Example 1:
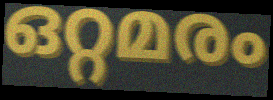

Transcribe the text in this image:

ഒറ്റമരം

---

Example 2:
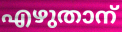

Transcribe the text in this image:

എഴുതാന്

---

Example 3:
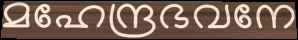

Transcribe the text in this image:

മഹേന്ദ്രഭവനേ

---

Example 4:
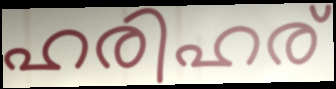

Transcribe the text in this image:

ഹരിഹര്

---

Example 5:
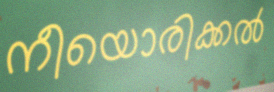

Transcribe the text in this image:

നീയൊരിക്കൽ